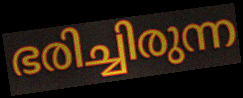
ഭരിച്ചിരുന്ന